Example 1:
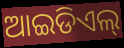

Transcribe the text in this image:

ଆଇଡିଏଲ୍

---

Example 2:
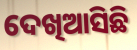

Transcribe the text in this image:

ଦେଖିଆସିଛି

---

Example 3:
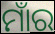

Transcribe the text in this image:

ମାଁର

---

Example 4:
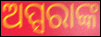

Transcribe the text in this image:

ଅପ୍ସରାଙ୍କ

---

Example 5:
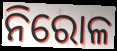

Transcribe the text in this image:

ନିରୋଳ